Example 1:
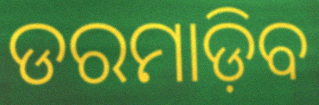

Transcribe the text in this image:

ଡରମାଡ଼ିବ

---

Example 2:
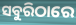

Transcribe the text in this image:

ସବୁରିଠାରେ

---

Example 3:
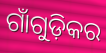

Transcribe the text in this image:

ଗାଁଗୁଡ଼ିକର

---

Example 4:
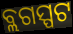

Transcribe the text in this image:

ବ୍ଲଗସ୍ପଟ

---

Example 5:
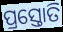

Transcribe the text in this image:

ପ୍ରସ୍ତୋତି